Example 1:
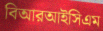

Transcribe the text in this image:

বিআরআইসিএম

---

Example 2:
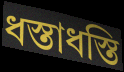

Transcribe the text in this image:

ধস্তাধস্তি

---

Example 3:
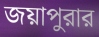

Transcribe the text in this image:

জয়াপুরার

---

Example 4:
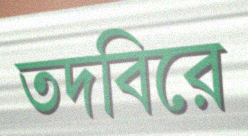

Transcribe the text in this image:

তদবিরে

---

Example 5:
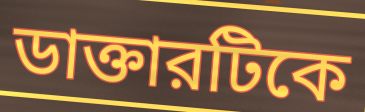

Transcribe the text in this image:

ডাক্তারটিকে